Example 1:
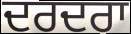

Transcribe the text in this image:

ਦਰਦਰਾ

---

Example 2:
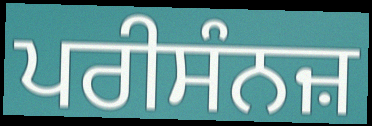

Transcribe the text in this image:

ਪਰੀਸੰਨਜ਼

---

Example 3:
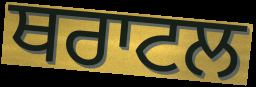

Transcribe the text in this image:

ਥਰਾਟਲ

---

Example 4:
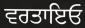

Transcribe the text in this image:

ਵਰਤਾਇਓ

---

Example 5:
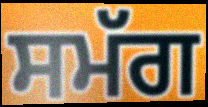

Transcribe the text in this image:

ਸਮੱਗ